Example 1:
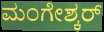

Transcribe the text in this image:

ಮಂಗೇಶ್ಕರ್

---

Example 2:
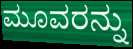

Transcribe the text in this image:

ಮೂವರನ್ನು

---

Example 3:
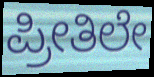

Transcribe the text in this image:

ಪ್ರೀತಿಲೇ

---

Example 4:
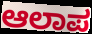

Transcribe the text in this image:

ಆಲಾಪ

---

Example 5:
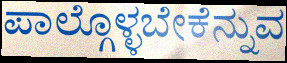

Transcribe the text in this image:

ಪಾಲ್ಗೊಳ್ಳಬೇಕೆನ್ನುವ